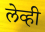
लेव्ही